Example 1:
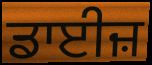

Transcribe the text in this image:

ਡਾਈਜ਼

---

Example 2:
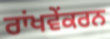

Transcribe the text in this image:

ਰਾਂਖਵੇਂਕਰਨ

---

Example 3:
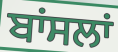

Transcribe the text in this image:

ਬਾਂਸਲਾਂ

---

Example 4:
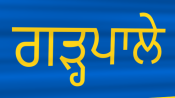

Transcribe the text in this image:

ਗੜ੍ਹਪਾਲੇ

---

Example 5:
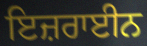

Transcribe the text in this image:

ਇਜ਼ਰਾਈਨ